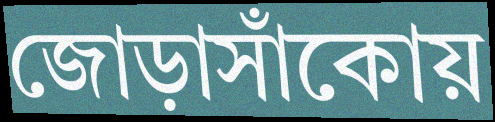
জোড়াসাঁকোয়